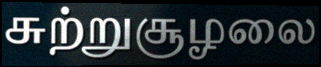
சுற்றுசூழலை